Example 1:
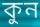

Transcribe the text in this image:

কুন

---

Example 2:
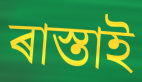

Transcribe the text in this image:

ৰাস্তাই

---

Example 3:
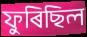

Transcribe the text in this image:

ফুৰিছিল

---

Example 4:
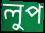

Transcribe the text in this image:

লুপ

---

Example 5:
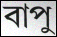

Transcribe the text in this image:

বাপু